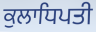
ਕੁਲਾਧਿਪਤੀ